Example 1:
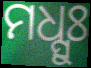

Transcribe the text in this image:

ମଧ୍ସୁଃ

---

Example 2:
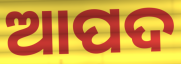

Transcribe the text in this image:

ଆପଦ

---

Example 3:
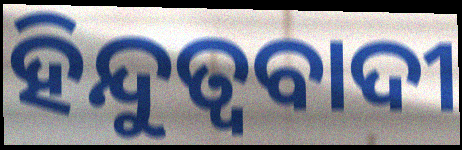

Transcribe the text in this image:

ହିନ୍ଦୁତ୍ବବାଦୀ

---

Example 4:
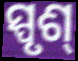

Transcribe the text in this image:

ସ୍ପୃଶ୍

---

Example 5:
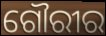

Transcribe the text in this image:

ଗୌରୀର